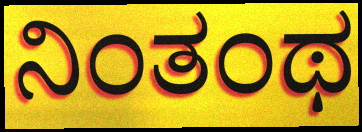
ನಿಂತಂಥ